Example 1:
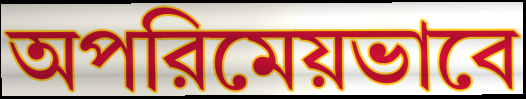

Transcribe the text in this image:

অপরিমেয়ভাবে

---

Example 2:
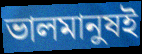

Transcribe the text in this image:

ভালমানুষই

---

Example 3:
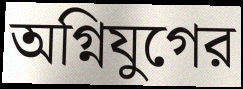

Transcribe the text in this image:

অগ্নিযুগের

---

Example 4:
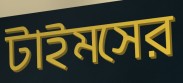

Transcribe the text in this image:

টাইমসের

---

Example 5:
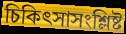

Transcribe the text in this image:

চিকিৎসাসংশ্লিষ্ট